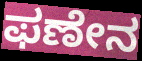
ಫಣೇನ